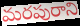
మరపురాని